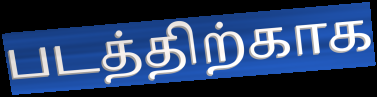
படத்திற்காக